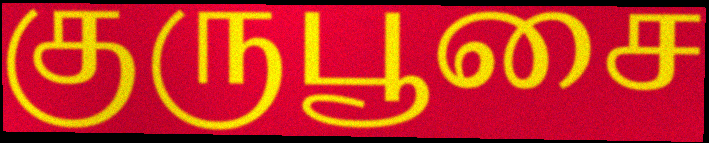
குருபூசை